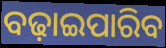
ବଢ଼ାଇପାରିବ